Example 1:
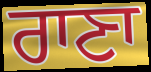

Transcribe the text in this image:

ਰਾਣਾ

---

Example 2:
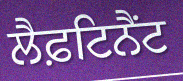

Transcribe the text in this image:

ਲੈਫ਼ਟਿਨੈਂਟ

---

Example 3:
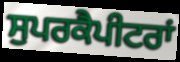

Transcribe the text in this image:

ਸੁਪਰਕੈਪੀਟਰਾਂ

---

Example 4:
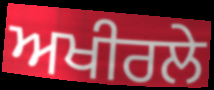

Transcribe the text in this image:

ਅਖੀਰਲੇ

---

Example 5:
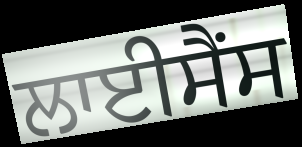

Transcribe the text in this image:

ਲਾਈਸੈਂਸ